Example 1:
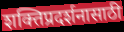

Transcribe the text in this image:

शक्तिप्रदर्शनासाठी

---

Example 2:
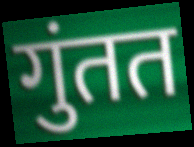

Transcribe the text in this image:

गुंतत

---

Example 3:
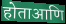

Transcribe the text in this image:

होताआणि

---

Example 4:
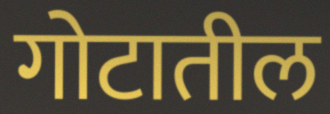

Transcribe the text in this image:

गोटातील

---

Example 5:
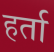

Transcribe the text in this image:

हर्ता